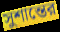
সুশান্তের